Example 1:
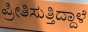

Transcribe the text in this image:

ಪ್ರೀತಿಸುತ್ತಿದ್ದಾಳೆ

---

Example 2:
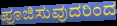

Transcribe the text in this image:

ಪೂಜಿಸುವುದರಿಂದ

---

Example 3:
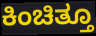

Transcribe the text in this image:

ಕಿಂಚಿತ್ತೂ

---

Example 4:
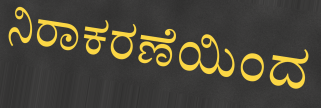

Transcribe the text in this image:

ನಿರಾಕರಣೆಯಿಂದ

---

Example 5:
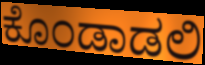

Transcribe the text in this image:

ಕೊಂಡಾಡಲಿ